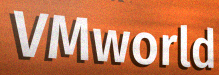
VMworld